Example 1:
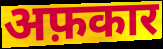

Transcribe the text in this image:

अफ़कार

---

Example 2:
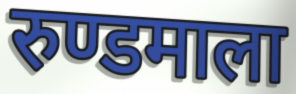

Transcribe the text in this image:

रुण्डमाला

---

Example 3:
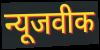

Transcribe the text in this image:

न्यूजवीक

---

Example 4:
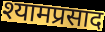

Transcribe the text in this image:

श्यामप्रसाद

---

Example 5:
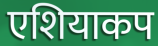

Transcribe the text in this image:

एशियाकप